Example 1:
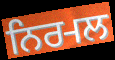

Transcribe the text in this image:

ਨਿਰ੍ਮਲ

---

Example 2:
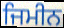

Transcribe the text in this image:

ਜਿਮੀਨ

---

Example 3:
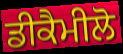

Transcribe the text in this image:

ਡੀਕੈਮੀਲੋ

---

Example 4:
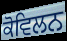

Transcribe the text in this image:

ਕੋਵਿਲਨ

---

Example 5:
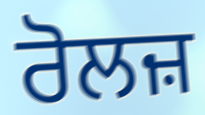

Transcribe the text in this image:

ਰੋਲਜ਼